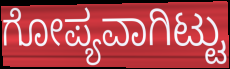
ಗೋಪ್ಯವಾಗಿಟ್ಟು